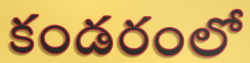
కండరంలో